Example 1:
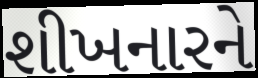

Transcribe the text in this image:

શીખનારને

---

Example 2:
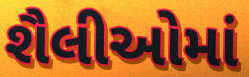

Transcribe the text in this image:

શૈલીઓમાં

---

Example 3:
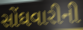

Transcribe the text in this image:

સોંઘવારીની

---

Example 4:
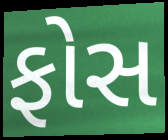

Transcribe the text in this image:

ફોસ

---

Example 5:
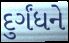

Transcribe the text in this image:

દુર્ગંધને